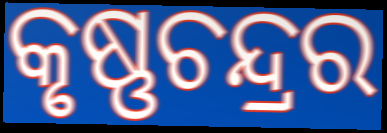
କୃଷ୍ଣଚନ୍ଦ୍ରର